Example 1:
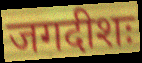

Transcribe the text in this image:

जगदीशः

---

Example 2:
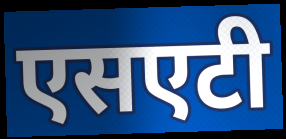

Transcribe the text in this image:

एसएटी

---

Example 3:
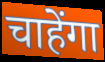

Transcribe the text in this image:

चाहेंगा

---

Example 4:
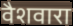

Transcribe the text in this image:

वैशवारा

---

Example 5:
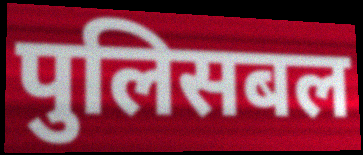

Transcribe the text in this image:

पुलिसबल